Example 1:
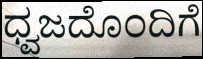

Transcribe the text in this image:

ಧ್ವಜದೊಂದಿಗೆ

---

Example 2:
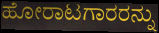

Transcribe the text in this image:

ಹೋರಾಟಗಾರರನ್ನು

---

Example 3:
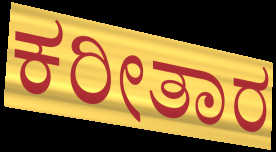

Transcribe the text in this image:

ಕರೀತಾರ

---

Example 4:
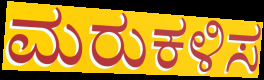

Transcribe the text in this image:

ಮರುಕಳಿಸ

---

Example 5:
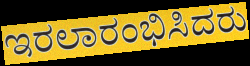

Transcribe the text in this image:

ಇರಲಾರಂಭಿಸಿದರು